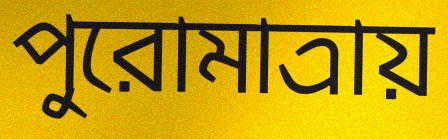
পুরোমাত্রায়